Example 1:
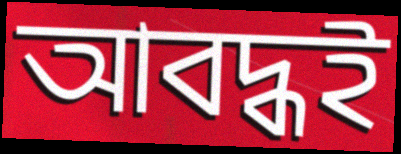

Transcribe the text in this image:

আবদ্ধই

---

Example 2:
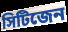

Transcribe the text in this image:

সিটিজেন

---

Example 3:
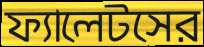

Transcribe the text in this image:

ফ্যালেটসের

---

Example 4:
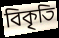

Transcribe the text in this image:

বিকৃতি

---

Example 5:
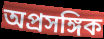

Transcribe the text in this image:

অপ্রসঙ্গিক